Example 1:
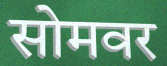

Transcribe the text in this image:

सोमवर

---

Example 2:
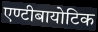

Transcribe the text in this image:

एण्टीबायोटिक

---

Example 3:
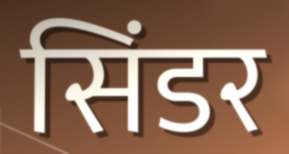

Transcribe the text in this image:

सिंडर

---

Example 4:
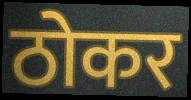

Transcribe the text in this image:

ठोकर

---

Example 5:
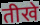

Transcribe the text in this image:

तीखे